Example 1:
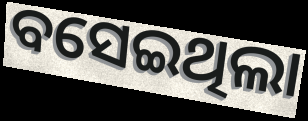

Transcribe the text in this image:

ବସେଇଥିଲା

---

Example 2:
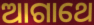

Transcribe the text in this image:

ଆଗାଥେ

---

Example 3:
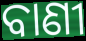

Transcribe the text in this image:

ବାଣୀ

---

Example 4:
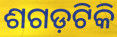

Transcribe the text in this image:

ଶଗଡ଼ଟିକି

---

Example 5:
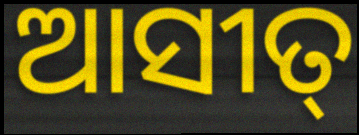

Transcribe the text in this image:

ଆସୀତ୍